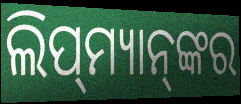
ଲିପ୍‌ମ୍ୟାନ୍‌ଙ୍କର